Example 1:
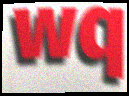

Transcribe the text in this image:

wq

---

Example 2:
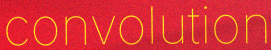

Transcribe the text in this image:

convolution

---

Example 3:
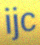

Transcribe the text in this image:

ijc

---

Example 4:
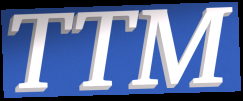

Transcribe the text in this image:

TTM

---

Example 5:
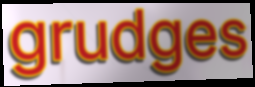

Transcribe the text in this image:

grudges